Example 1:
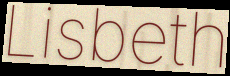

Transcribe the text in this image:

Lisbeth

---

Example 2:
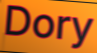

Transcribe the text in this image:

Dory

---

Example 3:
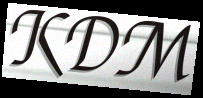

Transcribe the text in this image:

KDM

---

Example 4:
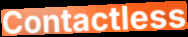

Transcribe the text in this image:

Contactless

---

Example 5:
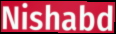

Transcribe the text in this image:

Nishabd